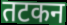
तटकन